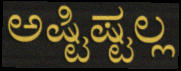
ಅಷ್ಟಿಷ್ಟಲ್ಲ